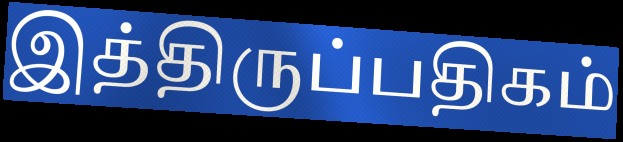
இத்திருப்பதிகம்